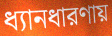
ধ্যানধারণায়